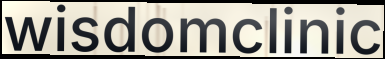
wisdomclinic